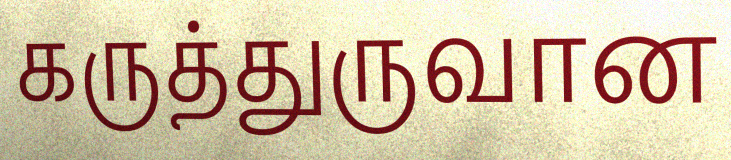
கருத்துருவான